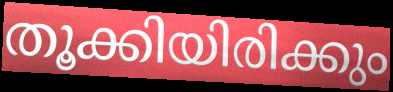
തൂക്കിയിരിക്കും